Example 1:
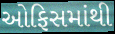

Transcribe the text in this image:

ઓફિસમાંથી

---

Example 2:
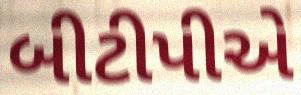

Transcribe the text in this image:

બીટીપીએ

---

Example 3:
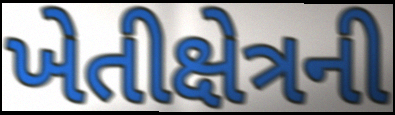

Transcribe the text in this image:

ખેતીક્ષેત્રની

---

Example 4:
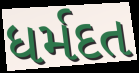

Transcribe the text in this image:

ધર્મદત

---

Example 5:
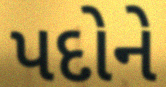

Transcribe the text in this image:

પદોને